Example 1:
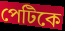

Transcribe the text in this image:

পেটিকে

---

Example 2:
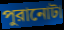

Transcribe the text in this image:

পুরানোটা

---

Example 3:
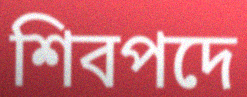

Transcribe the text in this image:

শিবপদে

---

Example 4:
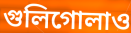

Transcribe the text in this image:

গুলিগোলাও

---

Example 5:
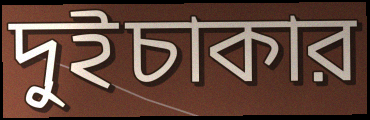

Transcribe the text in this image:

দুইচাকার